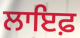
ਲਾਇਫ਼